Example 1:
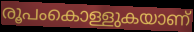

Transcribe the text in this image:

രൂപംകൊള്ളുകയാണ്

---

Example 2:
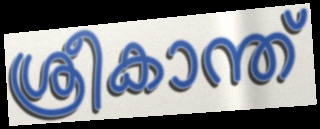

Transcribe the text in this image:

ശ്രീകാന്ത്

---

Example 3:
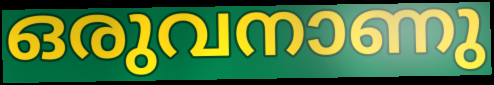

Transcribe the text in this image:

ഒരുവനാണു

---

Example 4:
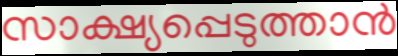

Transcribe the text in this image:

സാക്ഷ്യപ്പെടുത്താൻ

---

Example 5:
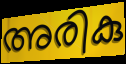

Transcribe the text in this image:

അരികു